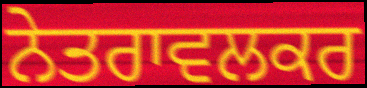
ਨੇਤਰਾਵਲਕਰ